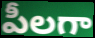
పీలగా